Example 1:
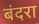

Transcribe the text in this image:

बंदरा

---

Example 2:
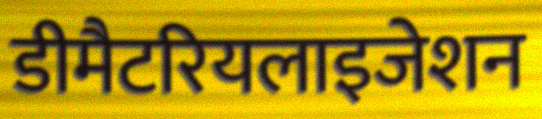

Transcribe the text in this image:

डीमैटरियलाइजेशन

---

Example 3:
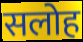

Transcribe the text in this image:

सलोह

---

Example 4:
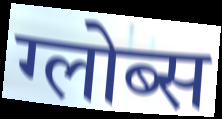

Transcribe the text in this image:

ग्लोब्स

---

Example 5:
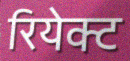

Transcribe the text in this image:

रियेक्ट